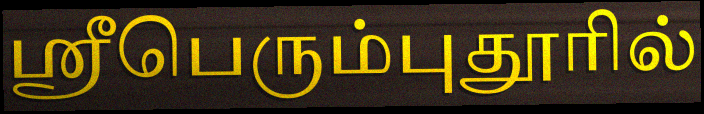
ஸ்ரீபெரும்புதூரில்